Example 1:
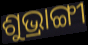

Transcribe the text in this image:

ଶୁଭ୍ରାଙ୍ଗୀ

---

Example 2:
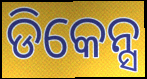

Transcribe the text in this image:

ଡିକେନ୍ସ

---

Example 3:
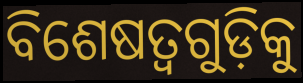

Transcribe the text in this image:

ବିଶେଷତ୍ୱଗୁଡ଼ିକୁ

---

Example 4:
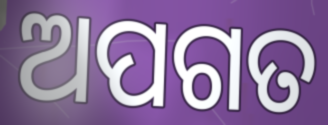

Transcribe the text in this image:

ଅପଗତ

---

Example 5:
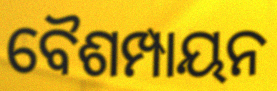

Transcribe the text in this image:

ବୈଶମ୍ପାୟନ